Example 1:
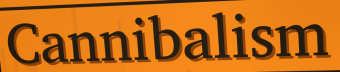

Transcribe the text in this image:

Cannibalism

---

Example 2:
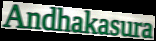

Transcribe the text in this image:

Andhakasura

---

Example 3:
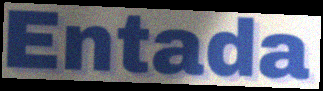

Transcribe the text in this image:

Entada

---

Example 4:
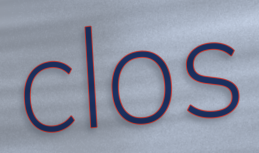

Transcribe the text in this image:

clos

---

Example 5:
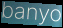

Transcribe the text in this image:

banyo